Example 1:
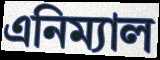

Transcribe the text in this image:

এনিম্যাল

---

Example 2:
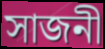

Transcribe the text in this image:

সাজনী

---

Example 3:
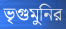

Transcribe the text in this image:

ভৃগুমুনির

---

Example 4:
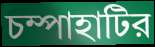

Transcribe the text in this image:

চম্পাহাটির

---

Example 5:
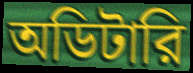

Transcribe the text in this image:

অডিটারি